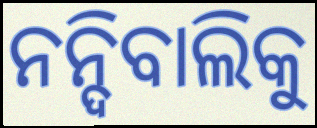
ନନ୍ଦିବାଲିକୁ